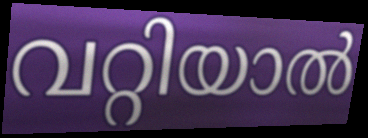
വറ്റിയാൽ